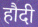
हौदी